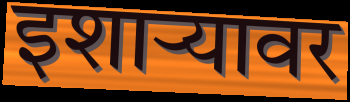
इशाऱ्यावर